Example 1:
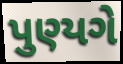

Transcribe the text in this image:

પુણ્યગે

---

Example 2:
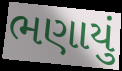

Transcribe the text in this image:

ભણાયું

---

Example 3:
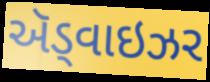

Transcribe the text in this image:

ઍડ્વાઇઝર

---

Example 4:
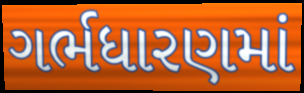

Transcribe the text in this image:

ગર્ભધારણમાં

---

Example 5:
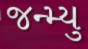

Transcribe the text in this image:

જન્મ્યુ